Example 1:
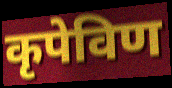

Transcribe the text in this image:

कृपेविण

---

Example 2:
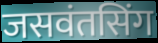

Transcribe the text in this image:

जसवंतसिंग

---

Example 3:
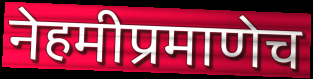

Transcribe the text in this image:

नेहमीप्रमाणेच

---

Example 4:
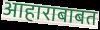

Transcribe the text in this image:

आहाराबाबत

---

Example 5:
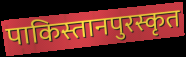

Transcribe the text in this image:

पाकिस्तानपुरस्कृत